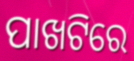
ପାଖଟିରେ